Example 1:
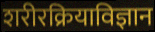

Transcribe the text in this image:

शरीरक्रियाविज्ञान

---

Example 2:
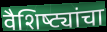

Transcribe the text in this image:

वैशिष्ट्यांचा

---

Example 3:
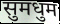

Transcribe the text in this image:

सुमधुम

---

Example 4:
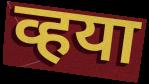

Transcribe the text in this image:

व्हया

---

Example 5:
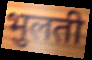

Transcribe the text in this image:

भुलती